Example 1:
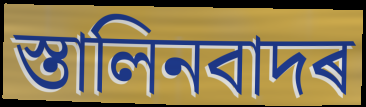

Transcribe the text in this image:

স্তালিনবাদৰ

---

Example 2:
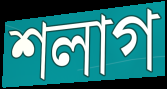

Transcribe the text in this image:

শলাগ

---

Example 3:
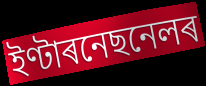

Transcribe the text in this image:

ইণ্টাৰনেছনেলৰ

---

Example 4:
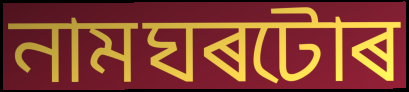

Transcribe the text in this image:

নামঘৰটোৰ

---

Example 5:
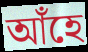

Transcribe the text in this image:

আঁহে